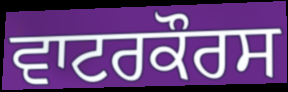
ਵਾਟਰਕੌਰਸ